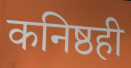
कनिष्ठही